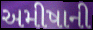
અમીષાની